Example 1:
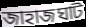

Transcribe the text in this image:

জাহাজঘাট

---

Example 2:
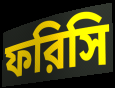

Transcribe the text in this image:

ফরিসি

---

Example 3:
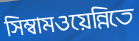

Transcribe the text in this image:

সিম্বামওয়েন্নিতে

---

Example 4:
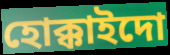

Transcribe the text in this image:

হোক্কাইদো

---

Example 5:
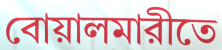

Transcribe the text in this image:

বোয়ালমারীতে